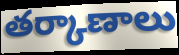
తర్కాణాలు